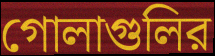
গোলাগুলির